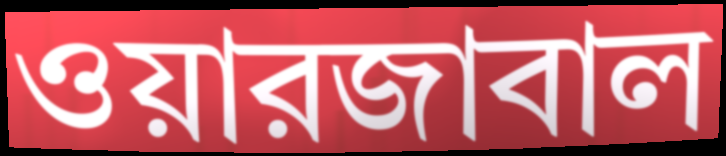
ওয়ারজাবাল